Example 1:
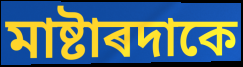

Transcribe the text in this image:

মাষ্টাৰদাকে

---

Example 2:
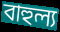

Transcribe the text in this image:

বাহুল্য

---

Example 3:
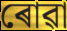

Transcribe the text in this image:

ৰোৱা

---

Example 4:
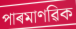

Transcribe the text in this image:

পাৰমাণৱিক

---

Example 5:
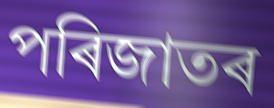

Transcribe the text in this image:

পৰিজাতৰ